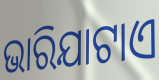
ଭାରିଯାଟାଏ